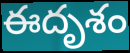
ఈదృశం